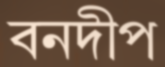
বনদীপ